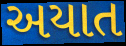
અયાત